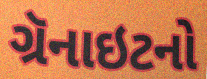
ગ્રૅનાઇટનો